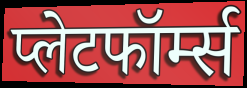
प्लेटफॉर्म्स